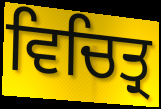
ਵਿਚਿਤ੍ਰ